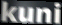
kuni